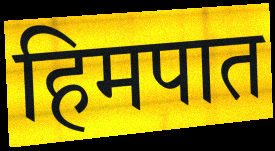
हिमपात